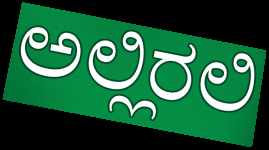
ಅಲ್ಲಿರಲಿ